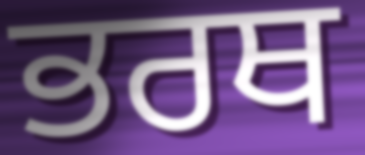
ਭਰਥ